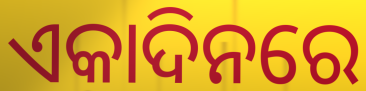
ଏକାଦିନରେ